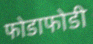
फोडाफोडी